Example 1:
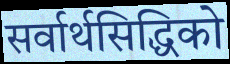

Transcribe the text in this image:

सर्वार्थसिद्धिको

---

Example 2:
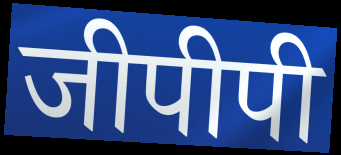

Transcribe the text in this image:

जीपीपी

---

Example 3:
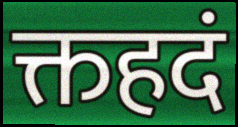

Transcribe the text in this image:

क्तहदं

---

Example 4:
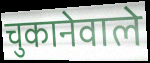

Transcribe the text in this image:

चुकानेवाले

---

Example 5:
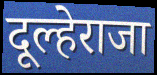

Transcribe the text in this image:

दूल्हेराजा